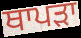
ਥਾਪੜਾ